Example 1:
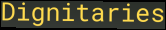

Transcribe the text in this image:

Dignitaries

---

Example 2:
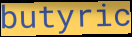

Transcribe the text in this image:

butyric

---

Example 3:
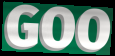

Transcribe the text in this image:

GOO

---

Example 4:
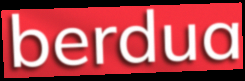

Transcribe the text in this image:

berdua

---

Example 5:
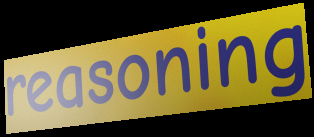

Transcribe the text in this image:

reasoning